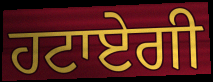
ਹਟਾਏਗੀ